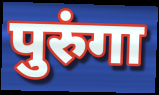
पुरुंगा